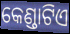
କେଣ୍ଡାଟିଏ